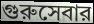
গুরুসেবার